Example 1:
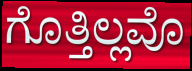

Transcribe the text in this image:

ಗೊತ್ತಿಲ್ಲವೊ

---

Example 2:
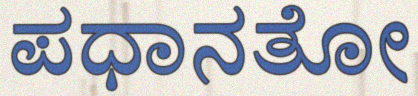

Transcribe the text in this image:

ಪಧಾನತೋ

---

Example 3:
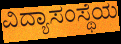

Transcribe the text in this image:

ವಿದ್ಯಾಸಂಸ್ಥೆಯ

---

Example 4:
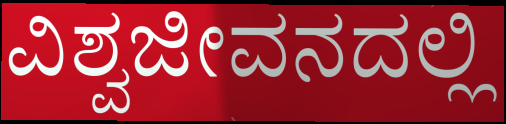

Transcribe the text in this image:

ವಿಶ್ವಜೀವನದಲ್ಲಿ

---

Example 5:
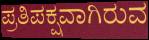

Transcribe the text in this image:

ಪ್ರತಿಪಕ್ಷವಾಗಿರುವ